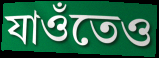
যাওঁতেও